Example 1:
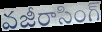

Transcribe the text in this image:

వజీరాసింగ్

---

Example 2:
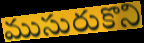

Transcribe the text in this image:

ముసురుకొని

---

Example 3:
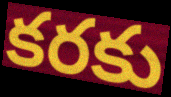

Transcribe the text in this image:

కరకు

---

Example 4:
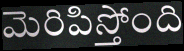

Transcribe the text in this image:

మెరిపిస్తోంది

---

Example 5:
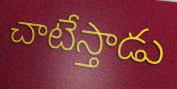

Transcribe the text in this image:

చాటేస్తాడు